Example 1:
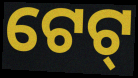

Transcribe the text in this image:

ଟେଟ୍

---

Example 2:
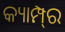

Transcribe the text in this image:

କ୍ୟାମ୍ପ୍‍ର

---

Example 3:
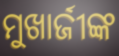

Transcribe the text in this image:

ମୁଖାର୍ଜୀଙ୍କ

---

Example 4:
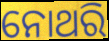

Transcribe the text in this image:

ନୋଥରି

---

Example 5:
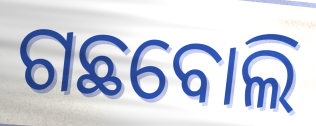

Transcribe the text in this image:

ଗଛବୋଲି